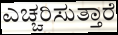
ಎಚ್ಚರಿಸುತ್ತಾರೆ